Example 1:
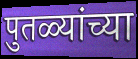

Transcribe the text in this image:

पुतळ्यांच्या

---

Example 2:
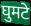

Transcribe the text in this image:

घुमटे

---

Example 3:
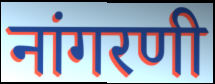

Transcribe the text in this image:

नांगरणी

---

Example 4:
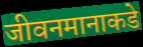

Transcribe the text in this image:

जीवनमानाकडे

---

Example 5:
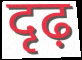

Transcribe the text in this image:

दृढ़